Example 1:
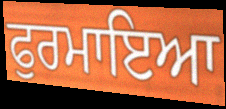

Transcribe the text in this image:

ਫੁਰਮਾਇਆ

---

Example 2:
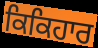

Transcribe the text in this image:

ਕਿਕਿਹਾਰ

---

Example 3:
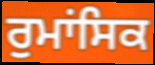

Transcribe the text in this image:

ਰੁਮਾਂਸਿਕ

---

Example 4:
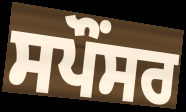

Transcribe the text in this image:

ਸਪੌਂਸਰ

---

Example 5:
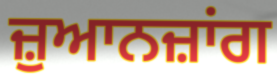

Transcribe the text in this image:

ਜ਼ੁਆਨਜ਼ਾਂਗ